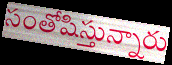
సంతోషిస్తున్నారు